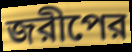
জরীপের